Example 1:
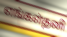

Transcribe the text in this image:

எங்கள்தனி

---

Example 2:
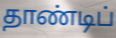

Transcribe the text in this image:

தாண்டிப்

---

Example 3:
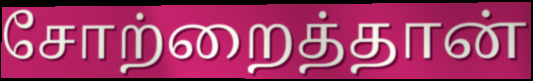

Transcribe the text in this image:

சோற்றைத்தான்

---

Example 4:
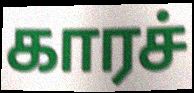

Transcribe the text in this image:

காரச்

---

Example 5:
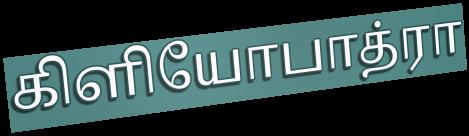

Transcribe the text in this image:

கிளியோபாத்ரா